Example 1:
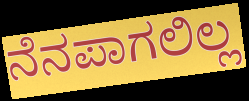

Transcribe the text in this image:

ನೆನಪಾಗಲಿಲ್ಲ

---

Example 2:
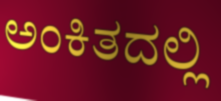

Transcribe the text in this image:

ಅಂಕಿತದಲ್ಲಿ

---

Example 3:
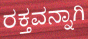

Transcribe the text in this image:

ರಕ್ತವನ್ನಾಗಿ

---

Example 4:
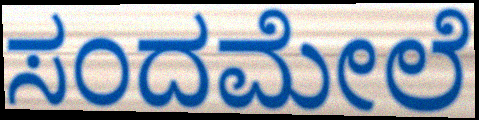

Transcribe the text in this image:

ಸಂದಮೇಲೆ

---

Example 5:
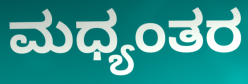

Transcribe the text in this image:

ಮಧ್ಯಂತರ